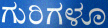
ಗುರಿಗಳೂ